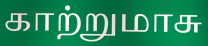
காற்றுமாசு